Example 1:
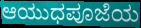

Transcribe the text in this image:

ಆಯುಧಪೂಜೆಯ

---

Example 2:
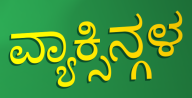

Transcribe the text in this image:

ವ್ಯಾಕ್ಸಿನ್ಗಳ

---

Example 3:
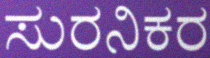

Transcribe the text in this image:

ಸುರನಿಕರ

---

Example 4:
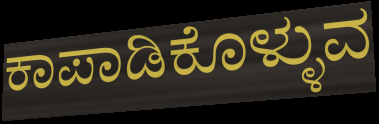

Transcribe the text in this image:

ಕಾಪಾಡಿಕೊಳ್ಳುವ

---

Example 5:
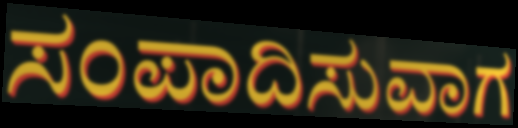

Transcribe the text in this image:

ಸಂಪಾದಿಸುವಾಗ